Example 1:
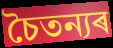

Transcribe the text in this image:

চৈতন্যৰ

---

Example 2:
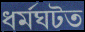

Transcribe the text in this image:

ধৰ্মঘটত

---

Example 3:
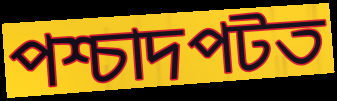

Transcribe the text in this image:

পশ্চাদপটত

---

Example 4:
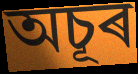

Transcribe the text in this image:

অচূৰ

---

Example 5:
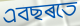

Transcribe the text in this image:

এবছৰতে